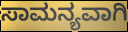
ಸಾಮನ್ಯವಾಗಿ